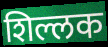
शिल्लक